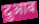
दुआब